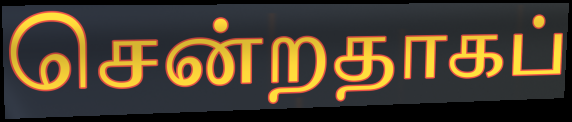
சென்றதாகப்